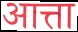
आत्ता